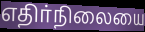
எதிர்நிலையை